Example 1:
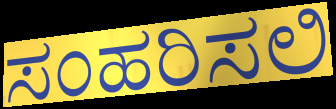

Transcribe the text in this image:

ಸಂಹರಿಸಲಿ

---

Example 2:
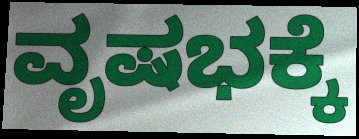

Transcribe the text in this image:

ವೃಷಭಕ್ಕೆ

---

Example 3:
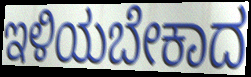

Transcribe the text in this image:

ಇಳಿಯಬೇಕಾದ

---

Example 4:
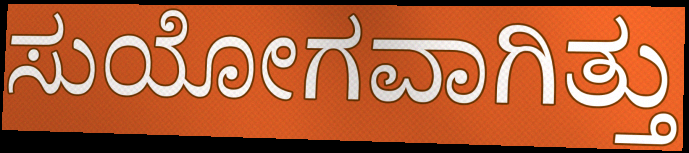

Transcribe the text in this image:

ಸುಯೋಗವಾಗಿತ್ತು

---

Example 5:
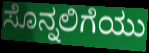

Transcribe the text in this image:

ಸೊನ್ನಲಿಗೆಯು